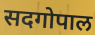
सदगोपाल